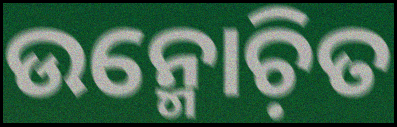
ଉନ୍ମୋଚ଼ିତ